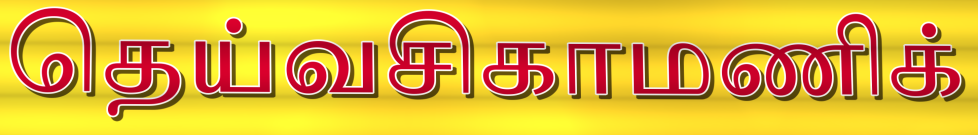
தெய்வசிகாமணிக்